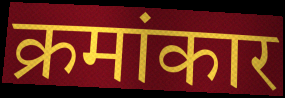
क्रमांकार